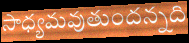
సాధ్యమవుతుందన్నది